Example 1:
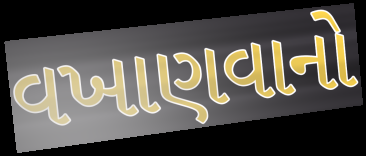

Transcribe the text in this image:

વખાણવાનો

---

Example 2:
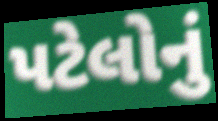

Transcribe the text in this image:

પટેલોનું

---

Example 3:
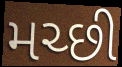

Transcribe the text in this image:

મચ્છી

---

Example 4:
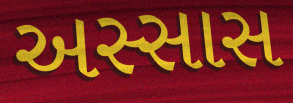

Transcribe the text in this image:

અસ્સાસ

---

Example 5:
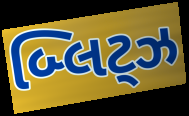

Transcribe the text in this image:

બ્લિટ્ઝ